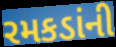
રમકડાંની